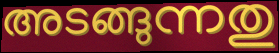
അടങ്ങുന്നതു